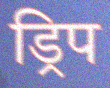
ड्रिप